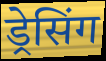
ड्रेसिंग